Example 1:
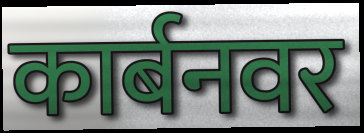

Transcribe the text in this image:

कार्बनवर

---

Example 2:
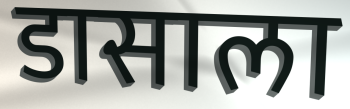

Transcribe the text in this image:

डासाला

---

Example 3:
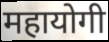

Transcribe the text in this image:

महायोगी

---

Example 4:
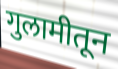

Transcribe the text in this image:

गुलामीतून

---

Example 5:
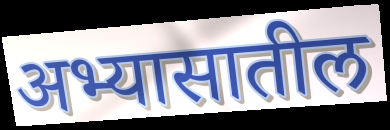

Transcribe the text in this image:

अभ्यासातील